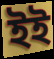
ইই